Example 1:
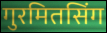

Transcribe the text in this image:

गुरमितसिंग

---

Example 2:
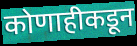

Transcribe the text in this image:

कोणाहीकडून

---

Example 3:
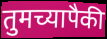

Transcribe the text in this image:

तुमच्यापैकी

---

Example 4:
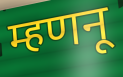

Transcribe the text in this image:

म्हणनू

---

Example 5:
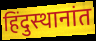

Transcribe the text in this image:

हिंदुस्थानांत